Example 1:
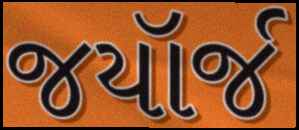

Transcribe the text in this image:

જયૉર્જ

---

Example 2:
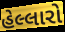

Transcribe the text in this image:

હેલ્લારો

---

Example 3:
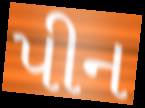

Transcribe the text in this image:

પીન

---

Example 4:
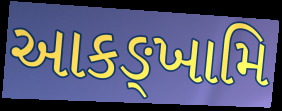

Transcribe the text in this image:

આકઙ્ખામિ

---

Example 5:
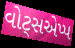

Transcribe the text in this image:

વોટ્સએપ્પ